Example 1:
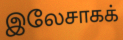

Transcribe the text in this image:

இலேசாகக்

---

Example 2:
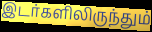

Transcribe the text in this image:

இடர்களிலிருந்தும்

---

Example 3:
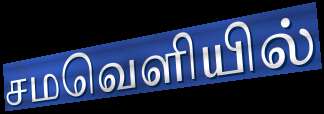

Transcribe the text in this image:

சமவெளியில்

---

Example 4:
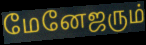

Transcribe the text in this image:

மேனேஜரும்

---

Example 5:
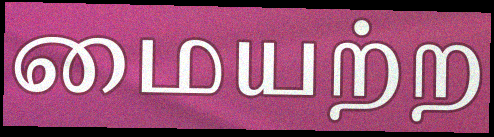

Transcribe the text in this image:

மையற்ற